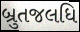
બ્રુતજલધિ